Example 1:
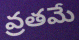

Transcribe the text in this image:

వ్రతమే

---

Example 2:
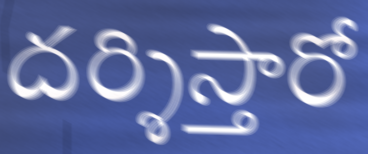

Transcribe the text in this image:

దర్శిస్తారో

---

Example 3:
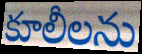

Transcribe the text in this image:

కూలీలను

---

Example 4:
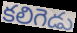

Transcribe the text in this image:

కలిగెడు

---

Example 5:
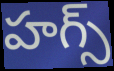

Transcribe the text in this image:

హగ్స్